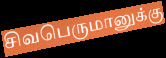
சிவபெருமானுக்கு